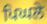
ਪਿਘਲੇ